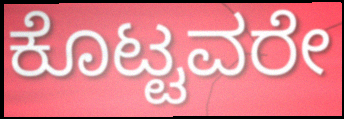
ಕೊಟ್ಟವರೇ